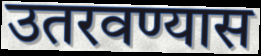
उतरवण्यास